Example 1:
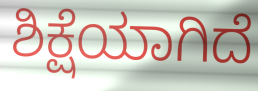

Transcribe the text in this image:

ಶಿಕ್ಷೆಯಾಗಿದೆ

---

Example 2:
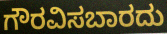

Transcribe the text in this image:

ಗೌರವಿಸಬಾರದು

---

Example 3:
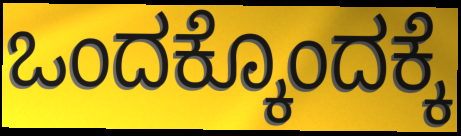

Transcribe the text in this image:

ಒಂದಕ್ಕೊಂದಕ್ಕೆ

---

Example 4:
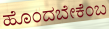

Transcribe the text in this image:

ಹೊಂದಬೇಕೆಂಬ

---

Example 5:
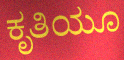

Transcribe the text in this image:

ಕೃತಿಯೂ